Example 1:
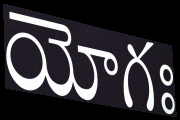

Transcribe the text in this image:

యోగః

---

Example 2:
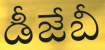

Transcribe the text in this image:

డీజేబీ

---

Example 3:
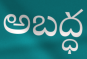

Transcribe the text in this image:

అబద్ధ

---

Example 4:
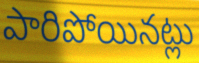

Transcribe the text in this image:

పారిపోయినట్లు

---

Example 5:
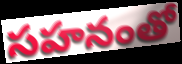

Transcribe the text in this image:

సహనంతో